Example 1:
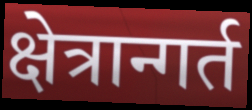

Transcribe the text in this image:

क्षेत्रान्गर्त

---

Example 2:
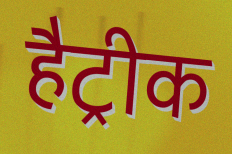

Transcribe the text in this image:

हैट्रीक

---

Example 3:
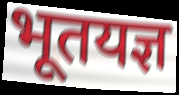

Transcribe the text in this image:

भूतयज्ञ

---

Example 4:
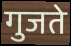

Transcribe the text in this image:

गुजते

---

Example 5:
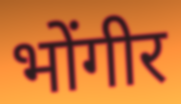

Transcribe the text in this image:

भोंगीर